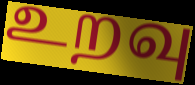
உறவு